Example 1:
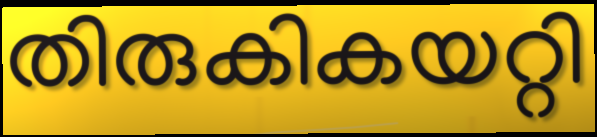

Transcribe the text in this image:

തിരുകികയറ്റി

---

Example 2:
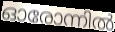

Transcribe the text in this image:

ഓരോന്നിൽ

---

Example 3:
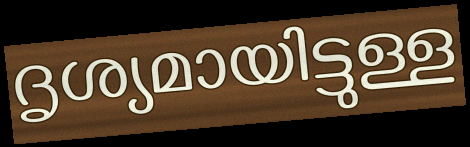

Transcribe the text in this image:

ദൃശ്യമായിട്ടുള്ള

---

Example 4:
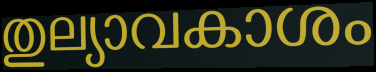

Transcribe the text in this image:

തുല്യാവകാശം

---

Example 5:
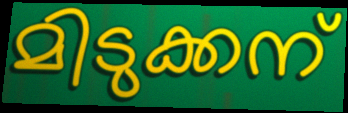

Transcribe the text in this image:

മിടുക്കന്